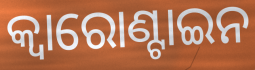
କ୍ୱାରୋଣ୍ଟାଇନ